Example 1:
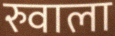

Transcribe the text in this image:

रुवाला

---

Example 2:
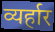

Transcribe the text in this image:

व्यर्हार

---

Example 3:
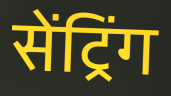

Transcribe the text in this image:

सेंट्रिंग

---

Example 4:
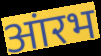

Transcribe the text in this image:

आंरभ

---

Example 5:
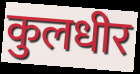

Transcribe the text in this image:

कुलधीर